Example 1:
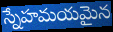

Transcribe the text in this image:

స్నేహమయమైన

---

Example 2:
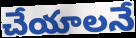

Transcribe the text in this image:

చేయాలనే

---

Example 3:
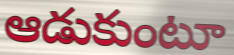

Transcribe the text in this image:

ఆడుకుంటూ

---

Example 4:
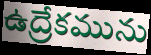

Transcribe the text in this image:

ఉద్రేకమును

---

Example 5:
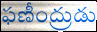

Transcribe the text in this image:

ఫణీంద్రుడు